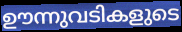
ഊന്നുവടികളുടെ